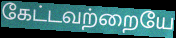
கேட்டவற்றையே